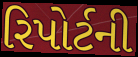
રિપોર્ટની